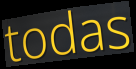
todas